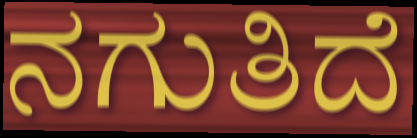
ನಗುತಿದೆ